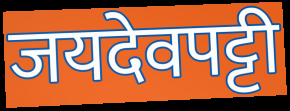
जयदेवपट्टी